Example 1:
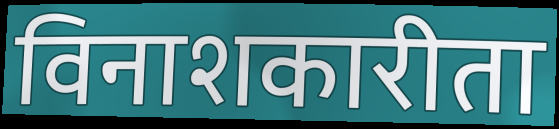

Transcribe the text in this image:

विनाशकारीता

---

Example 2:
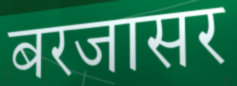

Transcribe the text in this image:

बरजासर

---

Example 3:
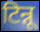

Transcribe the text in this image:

टिन्नू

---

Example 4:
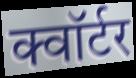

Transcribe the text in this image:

क्‍वॉर्टर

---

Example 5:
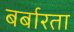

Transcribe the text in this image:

बर्बारता